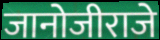
जानोजीराजे